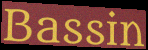
Bassin